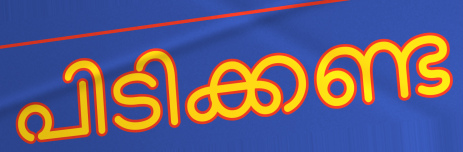
പിടിക്കണ്ട